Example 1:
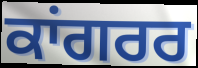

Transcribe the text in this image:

ਕਾਂਗਰਰ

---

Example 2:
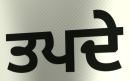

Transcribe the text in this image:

ਤਪਦੇ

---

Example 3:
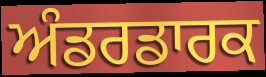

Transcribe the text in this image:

ਅੰਡਰਡਾਰਕ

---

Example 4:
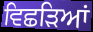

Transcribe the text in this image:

ਵਿਛੜਿਆਂ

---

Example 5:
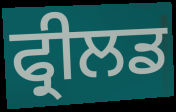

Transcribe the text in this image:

ਫ੍ਰੀਲਡ